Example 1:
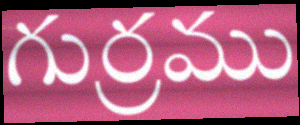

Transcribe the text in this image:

గుర్రము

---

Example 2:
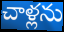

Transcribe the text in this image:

చాళ్లను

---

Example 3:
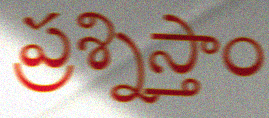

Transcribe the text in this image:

ప్రశ్నిస్తాం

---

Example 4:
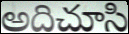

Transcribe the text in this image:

అదిచూసి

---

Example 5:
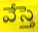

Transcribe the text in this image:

వేస్తె